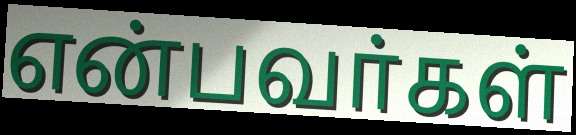
என்பவர்கள்